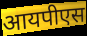
आयपीएस